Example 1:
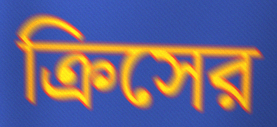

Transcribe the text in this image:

ক্রিসের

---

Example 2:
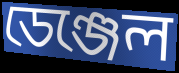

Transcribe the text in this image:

ডেঞ্জেল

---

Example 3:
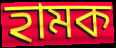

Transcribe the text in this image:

হামক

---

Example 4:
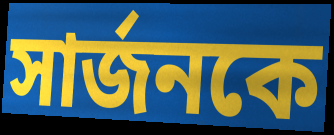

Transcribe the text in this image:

সার্জনকে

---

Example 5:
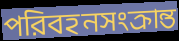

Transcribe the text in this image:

পরিবহনসংক্রান্ত